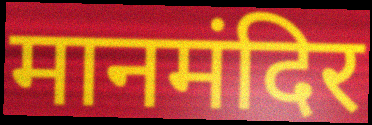
मानमंदिर